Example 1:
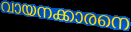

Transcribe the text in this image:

വായനക്കാരനെ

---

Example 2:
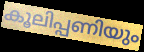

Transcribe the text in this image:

കൂലിപ്പണിയും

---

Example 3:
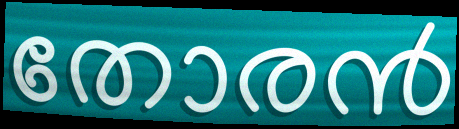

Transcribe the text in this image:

തോരൻ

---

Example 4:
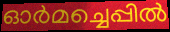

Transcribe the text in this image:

ഓർമച്ചെപ്പിൽ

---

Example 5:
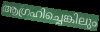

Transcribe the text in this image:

ആഗ്രഹിച്ചെങ്കിലും